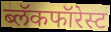
ब्लॅकफॉरेस्ट